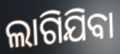
ଲାଗିଯିବା